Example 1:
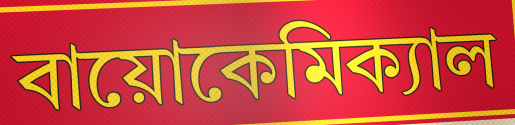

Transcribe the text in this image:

বায়োকেমিক্যাল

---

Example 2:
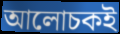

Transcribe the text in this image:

আলোচকই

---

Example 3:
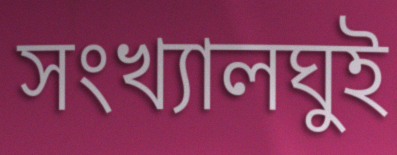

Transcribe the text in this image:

সংখ্যালঘুই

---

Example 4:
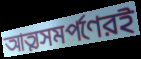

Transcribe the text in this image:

আত্মসমর্পণেরই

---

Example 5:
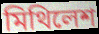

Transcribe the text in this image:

মিথিলেশ